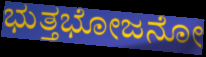
ಭುತ್ತಭೋಜನೋ